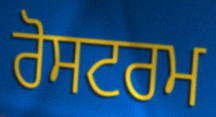
ਰੋਸਟਰਮ